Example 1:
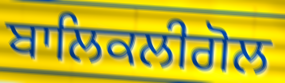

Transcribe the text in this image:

ਬਾਲਿਕਲੀਗੋਲ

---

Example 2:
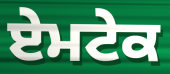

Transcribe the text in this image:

ਏਮਟੇਕ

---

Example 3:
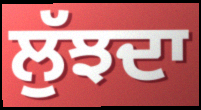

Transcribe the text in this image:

ਲੁੱਝਦਾ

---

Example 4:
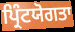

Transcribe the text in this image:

ਪ੍ਰਿੰਟਯੋਗਤਾ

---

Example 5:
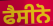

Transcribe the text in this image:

ਫੈਸੀਨੋ